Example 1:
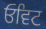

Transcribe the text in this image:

ਓਵਿਟ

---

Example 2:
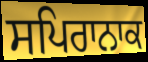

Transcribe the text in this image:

ਸਪਿਰਾਨਾਕ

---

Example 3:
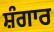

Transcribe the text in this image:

ਸ਼ੰਗਾਰ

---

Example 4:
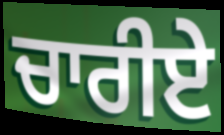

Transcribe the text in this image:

ਚਾਰੀਏ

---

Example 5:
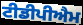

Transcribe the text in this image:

ਟੀਡੀਪੀਐਮ